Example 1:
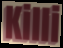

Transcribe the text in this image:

Killi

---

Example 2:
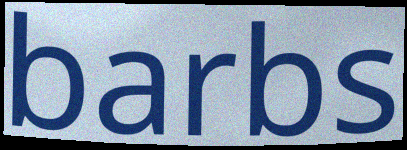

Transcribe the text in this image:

barbs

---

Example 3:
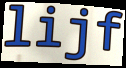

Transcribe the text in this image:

lijf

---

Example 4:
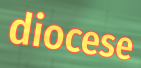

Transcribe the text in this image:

diocese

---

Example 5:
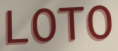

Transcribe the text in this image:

LOTO